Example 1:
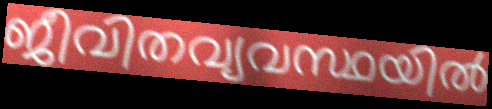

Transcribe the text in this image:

ജീവിതവ്യവസ്ഥയിൽ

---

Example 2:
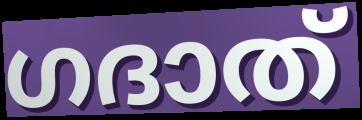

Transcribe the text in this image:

ഗദാത്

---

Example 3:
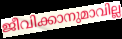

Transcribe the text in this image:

ജീവിക്കാനുമാവില്ല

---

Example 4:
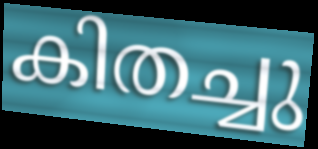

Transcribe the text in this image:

കിതച്ചു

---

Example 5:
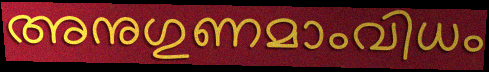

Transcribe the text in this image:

അനുഗുണമാംവിധം